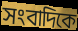
সংবাদিকে